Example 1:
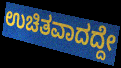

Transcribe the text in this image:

ಉಚಿತವಾದದ್ದೇ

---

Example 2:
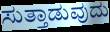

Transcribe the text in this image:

ಸುತ್ತಾಡುವುದು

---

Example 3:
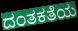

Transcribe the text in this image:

ದಂತಕತೆಯ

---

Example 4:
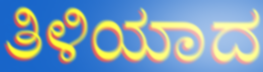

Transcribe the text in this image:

ತಿಳಿಯಾದ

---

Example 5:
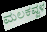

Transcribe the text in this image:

ಮಲಕವ್ವಳ